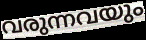
വരുന്നവയും